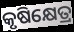
କୃଷିକ୍ଷେତ୍ର